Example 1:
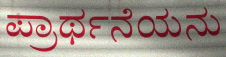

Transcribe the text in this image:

ಪ್ರಾರ್ಥನೆಯನು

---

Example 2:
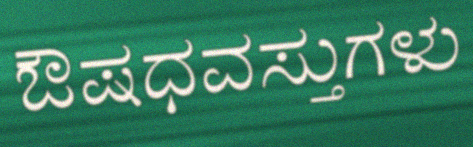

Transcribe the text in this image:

ಔಷಧವಸ್ತುಗಳು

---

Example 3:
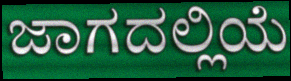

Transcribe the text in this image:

ಜಾಗದಲ್ಲಿಯೆ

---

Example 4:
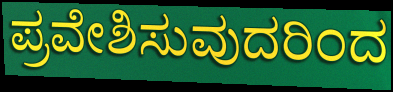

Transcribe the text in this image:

ಪ್ರವೇಶಿಸುವುದರಿಂದ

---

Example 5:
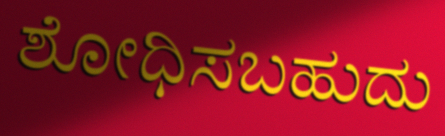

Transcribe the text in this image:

ಶೋಧಿಸಬಹುದು